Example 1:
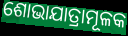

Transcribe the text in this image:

ଶୋଭାଯାତ୍ରାମୂଳକ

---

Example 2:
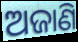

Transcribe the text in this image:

ଅଜାଣି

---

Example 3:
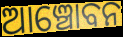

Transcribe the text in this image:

ଆଞ୍ଚୋବନ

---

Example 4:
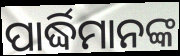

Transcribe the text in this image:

ପାର୍ଦ୍ଧିମାନଙ୍କ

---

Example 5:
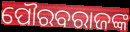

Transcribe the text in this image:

ପୌରବରାଜଙ୍କ